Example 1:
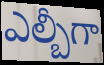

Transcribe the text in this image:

ఎల్బీగా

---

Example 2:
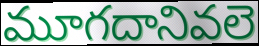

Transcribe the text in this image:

మూగదానివలె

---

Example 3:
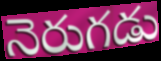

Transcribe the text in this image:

నెరుగడు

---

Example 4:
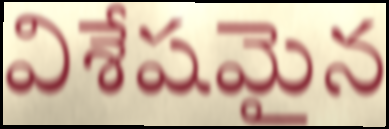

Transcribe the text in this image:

విశేషమైన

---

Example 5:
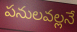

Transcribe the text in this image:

పనులవల్లనే